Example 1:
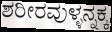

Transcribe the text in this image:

ಶರೀರವುಳ್ಳನ್ನಕ್ಕ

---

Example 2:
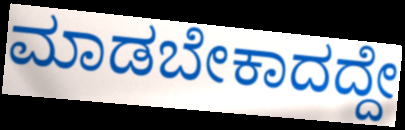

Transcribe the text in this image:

ಮಾಡಬೇಕಾದದ್ದೇ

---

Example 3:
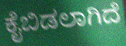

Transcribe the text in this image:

ಕೈಬಿಡಲಾಗಿದೆ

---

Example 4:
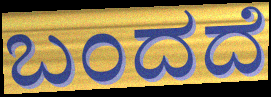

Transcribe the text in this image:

ಬಂದದೆ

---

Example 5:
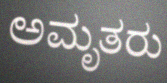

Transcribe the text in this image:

ಅಮೃತರು